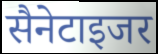
सैनेटाइजर